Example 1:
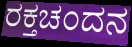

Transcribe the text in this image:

ರಕ್ತಚಂದನ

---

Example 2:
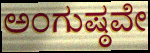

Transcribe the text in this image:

ಅಂಗುಷ್ಠವೇ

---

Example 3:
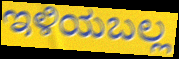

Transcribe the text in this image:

ಇಳಿಯಬಲ್ಲ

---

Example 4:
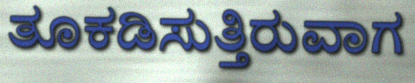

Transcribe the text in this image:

ತೂಕಡಿಸುತ್ತಿರುವಾಗ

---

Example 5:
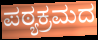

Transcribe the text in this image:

ಪಠ್ಯಕ್ರಮದ